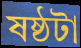
ষষ্ঠটা